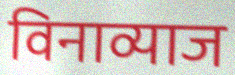
विनाव्याज